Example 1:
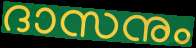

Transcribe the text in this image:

ദാസനും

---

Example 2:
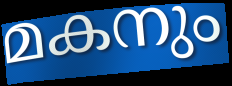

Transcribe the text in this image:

മകനും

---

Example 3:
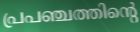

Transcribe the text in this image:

പ്രപഞ്ചത്തിന്റെ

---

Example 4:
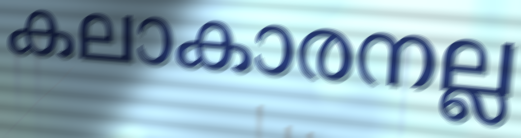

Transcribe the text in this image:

കലാകാരനല്ല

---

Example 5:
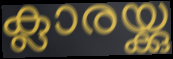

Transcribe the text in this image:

ക്ലാരയ്ക്കു